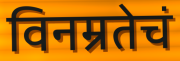
विनम्रतेचं